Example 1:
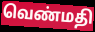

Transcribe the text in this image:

வெண்மதி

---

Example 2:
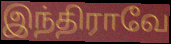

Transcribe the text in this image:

இந்திராவே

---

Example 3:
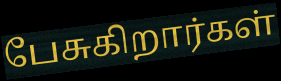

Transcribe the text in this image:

பேசுகிறார்கள்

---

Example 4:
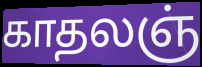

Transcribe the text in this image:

காதலஞ்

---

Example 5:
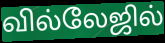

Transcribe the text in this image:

வில்லேஜில்